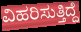
ವಿಹರಿಸುತ್ತಿದ್ದೆ